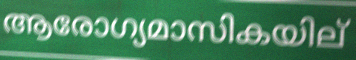
ആരോഗ്യമാസികയില്